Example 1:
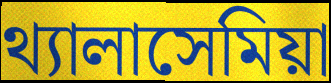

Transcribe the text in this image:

থ্যালাসেমিয়া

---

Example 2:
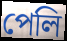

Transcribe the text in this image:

পেলি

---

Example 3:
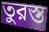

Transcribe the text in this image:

তুরস্ত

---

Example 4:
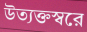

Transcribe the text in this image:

উত্যক্তস্বরে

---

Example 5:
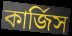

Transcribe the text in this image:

কার্জিস